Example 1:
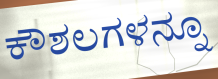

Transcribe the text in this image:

ಕೌಶಲಗಳನ್ನೂ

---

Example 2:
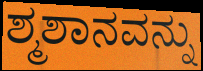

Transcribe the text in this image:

ಶ್ಮಶಾನವನ್ನು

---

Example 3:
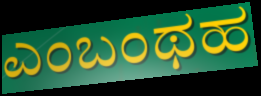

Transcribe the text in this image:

ಎಂಬಂಥಹ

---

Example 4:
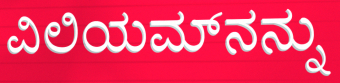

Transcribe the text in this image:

ವಿಲಿಯಮ್‌ನನ್ನು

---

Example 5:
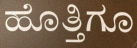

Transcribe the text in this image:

ಹೊತ್ತಿಗೂ